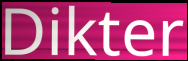
Dikter